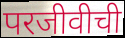
परजीवीची